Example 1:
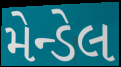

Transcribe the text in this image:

મેન્ડેલ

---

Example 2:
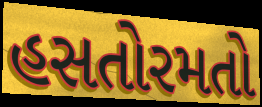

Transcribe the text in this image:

હસતોરમતો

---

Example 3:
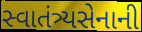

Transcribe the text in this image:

સ્વાતંત્ર્યસેનાની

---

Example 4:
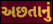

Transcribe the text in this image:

અછતાનું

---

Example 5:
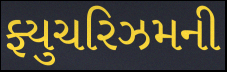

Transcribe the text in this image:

ફ્યુચરિઝમની